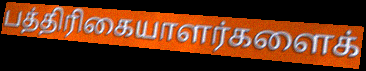
பத்திரிகையாளர்களைக்